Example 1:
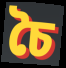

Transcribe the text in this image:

চৈ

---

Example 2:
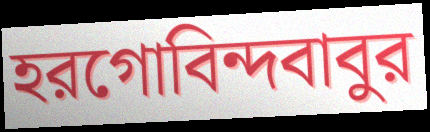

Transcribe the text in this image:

হরগোবিন্দবাবুর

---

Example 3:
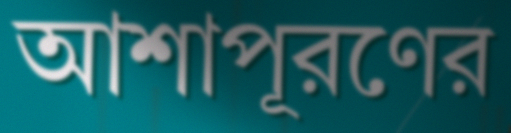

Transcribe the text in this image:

আশাপূরণের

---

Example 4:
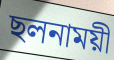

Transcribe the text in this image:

ছলনাময়ী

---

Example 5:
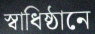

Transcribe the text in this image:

স্বাধিষ্ঠানে